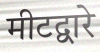
मीटद्वारे